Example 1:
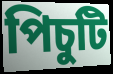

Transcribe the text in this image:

পিচুটি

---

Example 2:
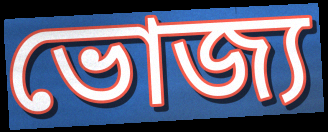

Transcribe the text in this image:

ভোজ্য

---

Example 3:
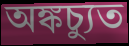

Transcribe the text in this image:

অঙ্কচ্যুত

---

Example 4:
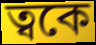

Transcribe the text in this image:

ত্বকে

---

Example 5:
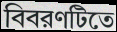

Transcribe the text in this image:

বিবরণটিতে